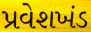
પ્રવેશખંડ